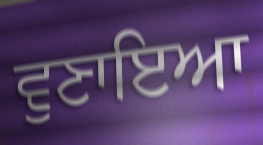
ਵੁਣਾਇਆ